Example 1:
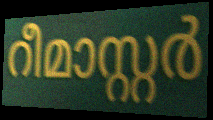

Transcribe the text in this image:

റീമാസ്റ്റർ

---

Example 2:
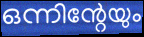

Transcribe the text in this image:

ഒന്നിന്റേയും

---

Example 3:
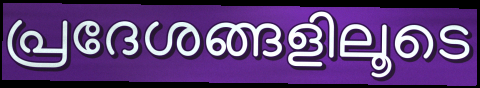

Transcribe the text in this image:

പ്രദേശങ്ങളിലൂടെ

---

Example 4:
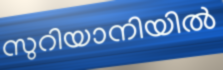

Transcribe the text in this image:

സുറിയാനിയിൽ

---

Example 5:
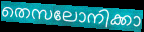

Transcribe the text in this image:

തെസലോനിക്കാ